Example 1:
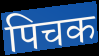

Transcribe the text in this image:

पिचक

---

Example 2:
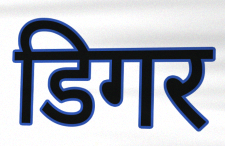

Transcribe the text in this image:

डिगर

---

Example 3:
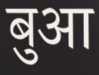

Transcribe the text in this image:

बुआ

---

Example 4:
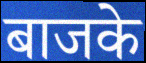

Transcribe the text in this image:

बाजके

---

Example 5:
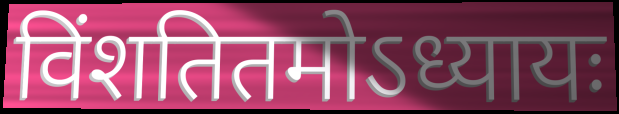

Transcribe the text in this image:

विंशतितमोऽध्यायः